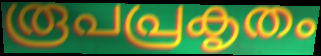
രൂപപ്രകൃതം